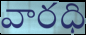
వారధి